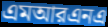
এমআরএনএ